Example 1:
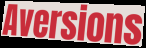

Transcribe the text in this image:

Aversions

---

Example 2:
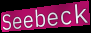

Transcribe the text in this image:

Seebeck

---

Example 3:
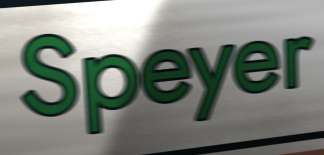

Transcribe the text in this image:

Speyer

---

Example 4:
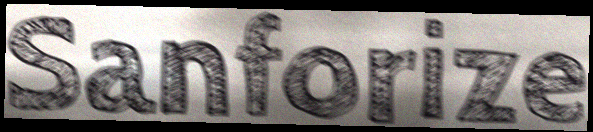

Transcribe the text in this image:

Sanforize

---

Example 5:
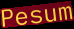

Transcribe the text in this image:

Pesum